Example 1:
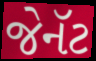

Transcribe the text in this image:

જેનૅટ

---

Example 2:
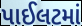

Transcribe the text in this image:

પાઈલટમાં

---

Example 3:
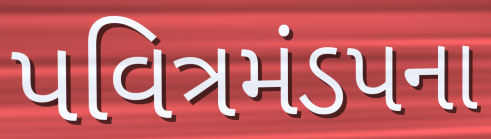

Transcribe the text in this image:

પવિત્રમંડપના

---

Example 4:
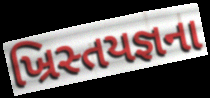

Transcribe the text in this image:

ખ્રિસ્તયજ્ઞના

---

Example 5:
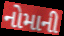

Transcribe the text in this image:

નોમાની